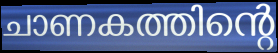
ചാണകത്തിന്റെ